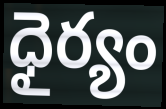
ధైర్యం